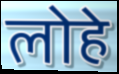
लोहे